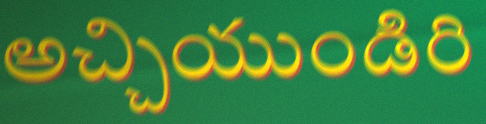
అచ్చియుండిరి